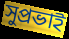
সুপ্রভাই